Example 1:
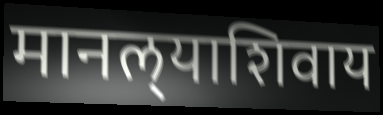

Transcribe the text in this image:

मानल्याशिवाय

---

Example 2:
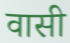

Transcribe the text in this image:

वासी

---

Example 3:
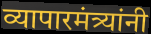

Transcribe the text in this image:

व्यापारमंत्र्यांनी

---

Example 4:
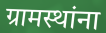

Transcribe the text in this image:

ग्रामस्थांना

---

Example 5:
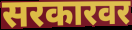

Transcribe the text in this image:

सरकारवर